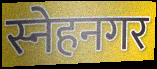
स्नेहनगर